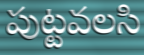
పుట్టవలసి